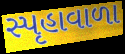
સ્પૃહાવાળા